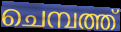
ചെമ്പത്ത്